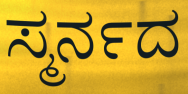
ಸ್ಮರ್ನದ